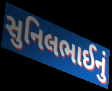
સુનિલભાઈનું